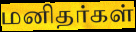
மனிதர்கள்